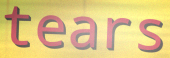
tears